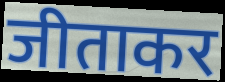
जीताकर